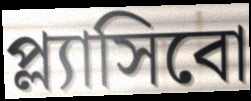
প্ল্যাসিবো